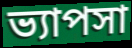
ভ্যাপসা